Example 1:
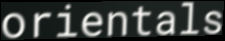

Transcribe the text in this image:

orientals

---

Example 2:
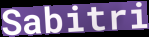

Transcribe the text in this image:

Sabitri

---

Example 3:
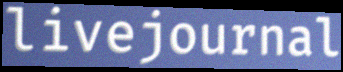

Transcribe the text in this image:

livejournal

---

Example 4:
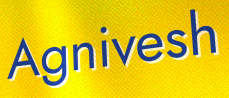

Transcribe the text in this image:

Agnivesh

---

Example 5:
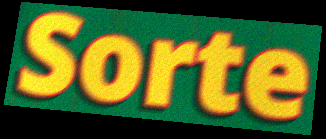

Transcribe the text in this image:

Sorte